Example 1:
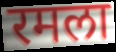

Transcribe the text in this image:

रमला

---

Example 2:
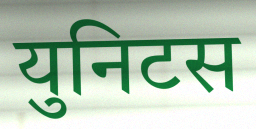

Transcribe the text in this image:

युनिटस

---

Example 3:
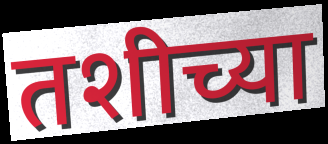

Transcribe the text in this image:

तशीच्या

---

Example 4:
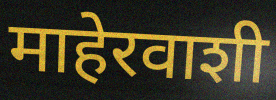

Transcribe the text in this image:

माहेरवाशी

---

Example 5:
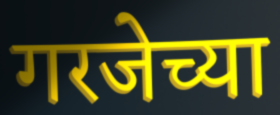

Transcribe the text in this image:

गरजेच्या